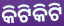
କିଟିକିଟି